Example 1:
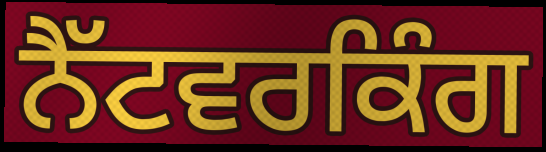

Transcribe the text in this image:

ਨੈੱਟਵਰਕਿੰਗ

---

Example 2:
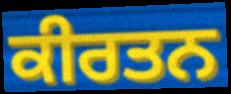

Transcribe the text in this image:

ਕੀਰਤਨ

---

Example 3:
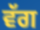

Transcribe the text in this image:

ਵੱਗ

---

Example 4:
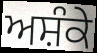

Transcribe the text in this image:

ਅਸ਼ੰਕੇ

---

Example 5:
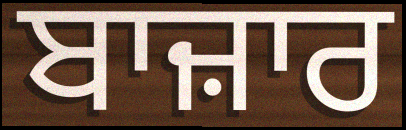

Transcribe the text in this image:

ਬਾਜ਼ਾਰ